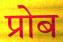
प्रोब